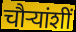
चौर्‍यांशीं